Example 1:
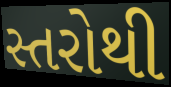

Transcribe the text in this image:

સ્તરોથી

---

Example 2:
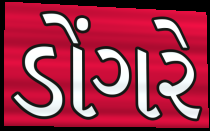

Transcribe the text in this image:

ડોંગરે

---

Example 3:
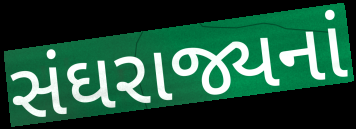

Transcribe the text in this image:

સંઘરાજ્યનાં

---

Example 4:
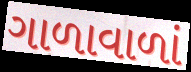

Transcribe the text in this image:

ગાળાવાળાં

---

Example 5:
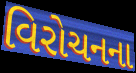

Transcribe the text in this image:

વિરોચનના